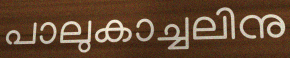
പാലുകാച്ചലിനു